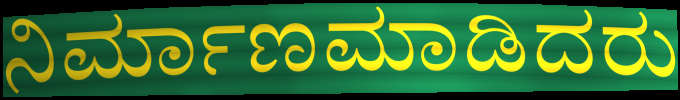
ನಿರ್ಮಾಣಮಾಡಿದರು